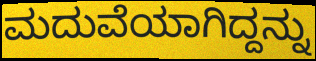
ಮದುವೆಯಾಗಿದ್ದನ್ನು